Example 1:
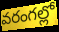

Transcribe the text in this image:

వరంగల్లో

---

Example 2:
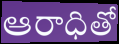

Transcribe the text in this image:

ఆరాధితో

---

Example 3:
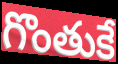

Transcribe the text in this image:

గొంతుకే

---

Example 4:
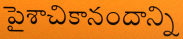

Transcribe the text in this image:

పైశాచికానందాన్ని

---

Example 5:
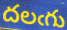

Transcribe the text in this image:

దలఁగు